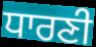
ਧਾਰਣੀ